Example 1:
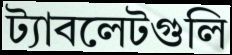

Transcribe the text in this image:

ট্যাবলেটগুলি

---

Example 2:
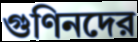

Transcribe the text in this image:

গুণিনদের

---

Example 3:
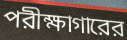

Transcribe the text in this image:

পরীক্ষাগারের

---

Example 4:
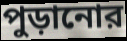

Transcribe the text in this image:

পুড়ানোর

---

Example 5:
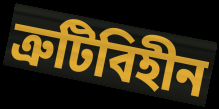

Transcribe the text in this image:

ত্রুটিবিহীন